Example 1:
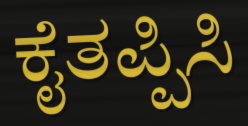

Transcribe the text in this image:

ಕೈತಪ್ಪಿಸಿ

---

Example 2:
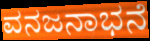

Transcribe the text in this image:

ವನಜನಾಭನೆ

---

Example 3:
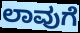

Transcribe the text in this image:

ಲಾವುಗೆ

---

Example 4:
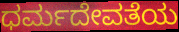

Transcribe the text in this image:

ಧರ್ಮದೇವತೆಯ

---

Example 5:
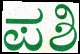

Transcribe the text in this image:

ಪಶಿ